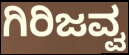
ಗಿರಿಜವ್ವ